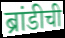
ब्रांडीची